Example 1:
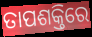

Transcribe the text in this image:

ତାପଶକ୍ତିରେ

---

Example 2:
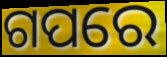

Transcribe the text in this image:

ଗପରେ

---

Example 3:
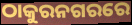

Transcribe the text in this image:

ଠାକୁରନଗରରେ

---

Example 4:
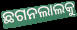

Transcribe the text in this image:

ଛଗନଲାଲକୁ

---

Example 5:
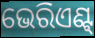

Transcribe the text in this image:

ଭେରିଏଣ୍ଟ୍